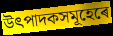
উৎপাদকসমূহেৰে